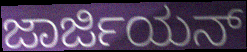
ಜಾರ್ಜಿಯನ್